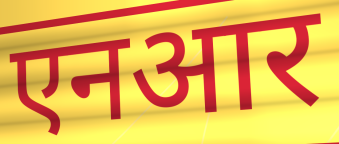
एनआर